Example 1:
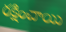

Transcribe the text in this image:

రక్షించాయి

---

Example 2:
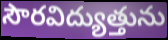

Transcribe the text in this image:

సౌరవిద్యుత్తును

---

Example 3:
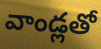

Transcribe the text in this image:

వాండ్లతో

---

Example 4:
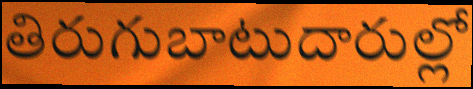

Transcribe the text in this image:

తిరుగుబాటుదారుల్లో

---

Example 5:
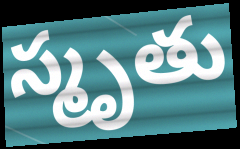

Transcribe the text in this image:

స్మృతు